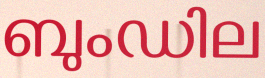
ബുംഡില